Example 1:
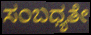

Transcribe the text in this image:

ಸಂಬಧ್ಯತೇ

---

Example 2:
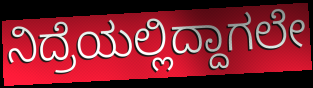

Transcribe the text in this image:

ನಿದ್ರೆಯಲ್ಲಿದ್ದಾಗಲೇ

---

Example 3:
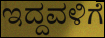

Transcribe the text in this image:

ಇದ್ದವಳಿಗೆ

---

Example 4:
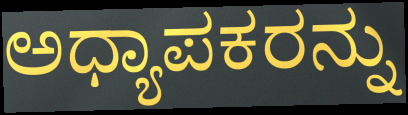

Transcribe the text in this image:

ಅಧ್ಯಾಪಕರನ್ನು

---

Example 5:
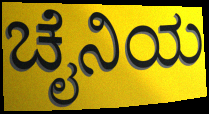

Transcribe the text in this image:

ಚೈನಿಯ